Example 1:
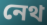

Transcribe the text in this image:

নেথ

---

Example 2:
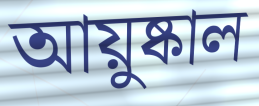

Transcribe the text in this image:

আয়ুষ্কাল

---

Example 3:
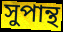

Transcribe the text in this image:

সুপান্থ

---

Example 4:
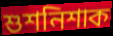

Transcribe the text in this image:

শুশনিশাক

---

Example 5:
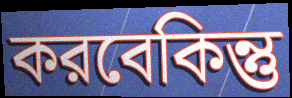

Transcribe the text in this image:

করবেকিন্তু